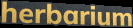
herbarium